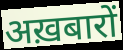
अख़बारों